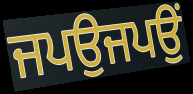
ਜਪਉਜਪਉਂ